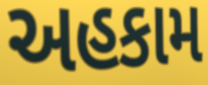
અહકામ